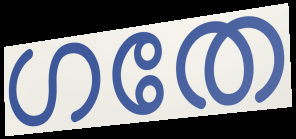
ഗതേ